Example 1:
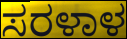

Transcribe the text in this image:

ಸರಳಾಳ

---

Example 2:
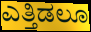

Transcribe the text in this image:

ಎತ್ತಿಡಲೂ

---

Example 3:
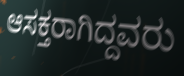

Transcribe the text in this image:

ಆಸಕ್ತರಾಗಿದ್ದವರು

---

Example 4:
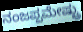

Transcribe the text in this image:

ನಂಜಪ್ಪಮೇಷ್ಟ್ರು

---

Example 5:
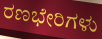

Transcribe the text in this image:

ರಣಭೇರಿಗಳು